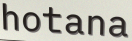
hotana